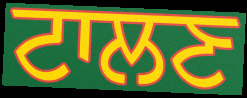
ਟਾਲਣ